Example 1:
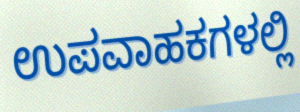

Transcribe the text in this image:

ಉಪವಾಹಕಗಳಲ್ಲಿ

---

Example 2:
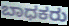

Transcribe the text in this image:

ಬಾಧಕರು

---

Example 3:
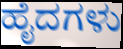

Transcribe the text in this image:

ಹೈದಗಳು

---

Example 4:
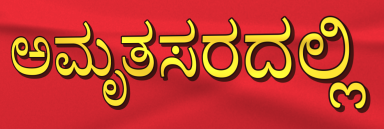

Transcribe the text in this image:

ಅಮೃತಸರದಲ್ಲಿ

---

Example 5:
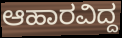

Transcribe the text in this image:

ಆಹಾರವಿದ್ದ